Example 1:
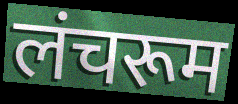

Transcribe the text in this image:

लंचरूम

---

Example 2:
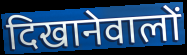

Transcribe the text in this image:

दिखानेवालों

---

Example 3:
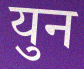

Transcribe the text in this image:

युन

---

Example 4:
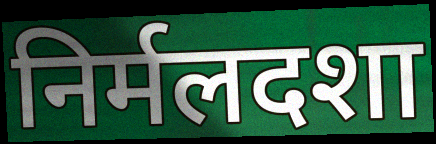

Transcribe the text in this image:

निर्मलदशा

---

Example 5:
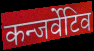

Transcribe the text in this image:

कन्जर्वेटिव